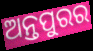
ଅନ୍ତପୁରର